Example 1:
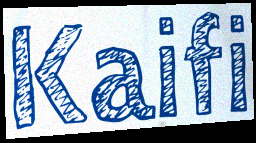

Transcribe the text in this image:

Kaifi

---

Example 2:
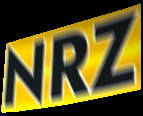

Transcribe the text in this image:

NRZ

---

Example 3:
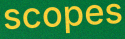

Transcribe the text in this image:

scopes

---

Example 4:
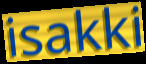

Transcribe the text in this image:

isakki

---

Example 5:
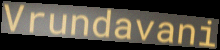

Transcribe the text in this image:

Vrundavani